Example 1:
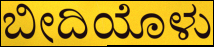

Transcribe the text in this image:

ಬೀದಿಯೊಳು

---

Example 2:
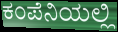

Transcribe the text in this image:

ಕಂಪೆನಿಯಲ್ಲಿ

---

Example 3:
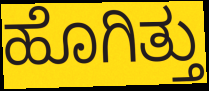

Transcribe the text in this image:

ಹೊಗಿತ್ತು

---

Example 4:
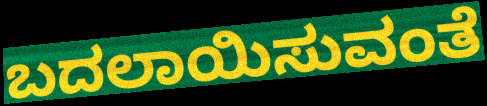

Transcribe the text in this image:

ಬದಲಾಯಿಸುವಂತೆ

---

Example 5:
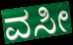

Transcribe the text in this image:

ವಸೀ